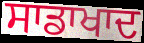
ਸਾਡਾਖਾਦ